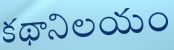
కథానిలయం